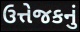
ઉત્તેજકનું